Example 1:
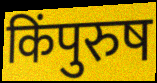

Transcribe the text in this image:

किंपुरुष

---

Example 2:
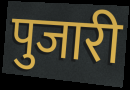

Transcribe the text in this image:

पुजारी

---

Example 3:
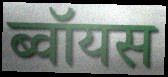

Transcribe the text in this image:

ब्वॉयस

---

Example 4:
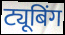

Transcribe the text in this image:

ट्यूबिंग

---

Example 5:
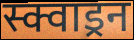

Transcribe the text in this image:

स्क्वाड्रन